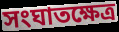
সংঘাতক্ষেত্র